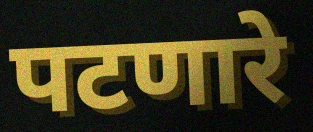
पटणारे